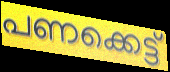
പണക്കെട്ട്